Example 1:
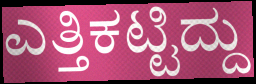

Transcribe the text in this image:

ಎತ್ತಿಕಟ್ಟಿದ್ದು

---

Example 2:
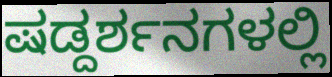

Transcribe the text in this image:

ಷಡ್ದರ್ಶನಗಳಲ್ಲಿ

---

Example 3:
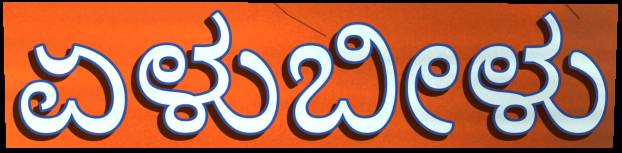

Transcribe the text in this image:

ಏಳುಬೀಳು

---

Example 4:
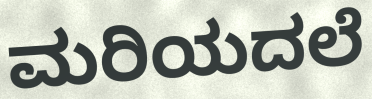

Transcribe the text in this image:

ಮರಿಯದಲೆ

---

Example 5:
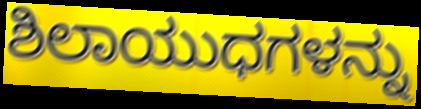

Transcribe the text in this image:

ಶಿಲಾಯುಧಗಳನ್ನು